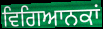
ਵਿਗਿਆਨਕਾਂ